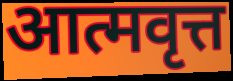
आत्मवृत्त